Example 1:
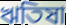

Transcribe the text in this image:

ঋতিষা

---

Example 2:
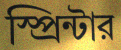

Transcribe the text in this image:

স্প্রিন্টার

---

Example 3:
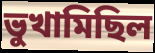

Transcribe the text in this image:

ভুখামিছিল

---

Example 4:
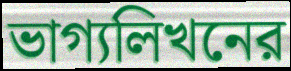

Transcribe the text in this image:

ভাগ্যলিখনের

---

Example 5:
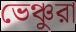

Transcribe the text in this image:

ভেঞ্চুরা